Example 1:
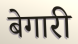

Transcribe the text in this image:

बेगारी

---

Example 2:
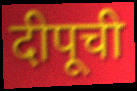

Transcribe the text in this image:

दीपूची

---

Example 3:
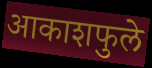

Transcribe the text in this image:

आकाशफुले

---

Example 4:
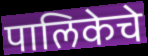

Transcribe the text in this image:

पालिकेचे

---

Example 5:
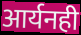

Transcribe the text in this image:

आर्यनही